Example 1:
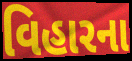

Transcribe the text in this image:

વિહારના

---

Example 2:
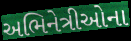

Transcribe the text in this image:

અભિનેત્રીઓના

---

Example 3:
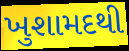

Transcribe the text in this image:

ખુશામદથી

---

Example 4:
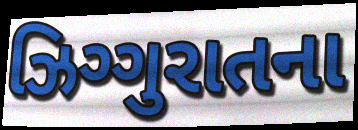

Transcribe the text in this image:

ઝિગ્ગુરાતના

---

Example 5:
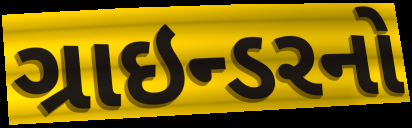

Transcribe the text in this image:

ગ્રાઇન્ડરનો